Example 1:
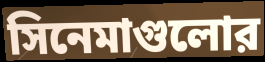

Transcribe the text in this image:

সিনেমাগুলোর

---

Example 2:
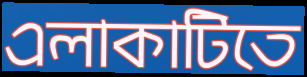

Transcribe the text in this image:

এলাকাটিতে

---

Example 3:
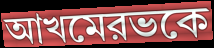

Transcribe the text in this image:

আখমেরভকে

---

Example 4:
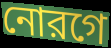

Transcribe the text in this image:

নোরগে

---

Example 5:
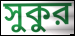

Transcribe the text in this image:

সুকুর